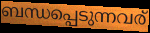
ബന്ധപ്പെടുന്നവര്